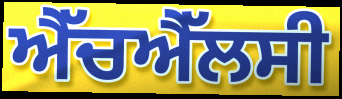
ਐੱਚਐੱਲਸੀ